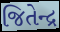
જિતેન્દ્ર